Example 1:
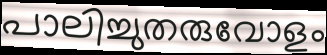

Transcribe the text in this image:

പാലിച്ചുതരുവോളം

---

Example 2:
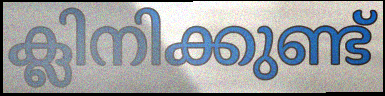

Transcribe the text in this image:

ക്ലിനിക്കുണ്ട്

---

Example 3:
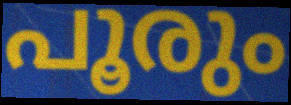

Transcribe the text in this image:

പൂരും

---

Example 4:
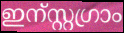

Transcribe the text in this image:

ഇന്സ്റ്റഗ്രാം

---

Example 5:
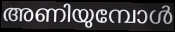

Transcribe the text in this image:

അണിയുമ്പോൾ